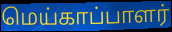
மெய்காப்பாளர்